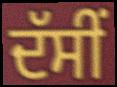
ਦੱਸੀਂ